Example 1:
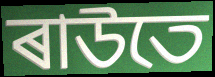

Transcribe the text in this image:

ৰাউতে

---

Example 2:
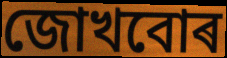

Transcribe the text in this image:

জোখবোৰ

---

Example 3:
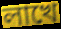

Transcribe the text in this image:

লাখে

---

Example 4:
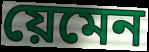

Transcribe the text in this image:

য়েমেন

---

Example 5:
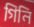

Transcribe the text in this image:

গিনি